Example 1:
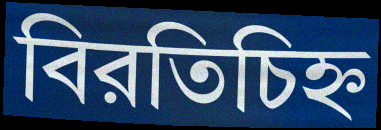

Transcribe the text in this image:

বিরতিচিহ্ন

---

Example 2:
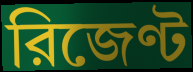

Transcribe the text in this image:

রিজেণ্ট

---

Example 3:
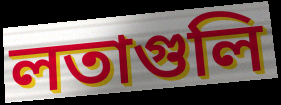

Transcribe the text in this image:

লতাগুলি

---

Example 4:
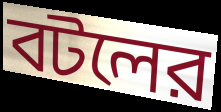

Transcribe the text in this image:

বটলের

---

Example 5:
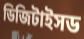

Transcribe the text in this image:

ডিজিটাইসড